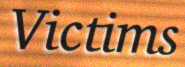
Victims